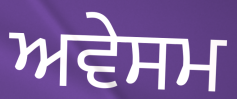
ਅਵੇਸਮ